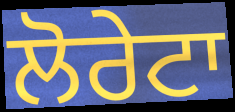
ਲੋਰੇਟਾ